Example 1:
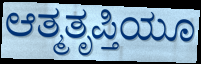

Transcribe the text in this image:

ಆತ್ಮತೃಪ್ತಿಯೂ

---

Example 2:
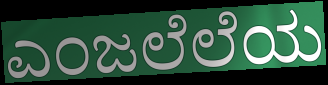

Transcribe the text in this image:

ಎಂಜಲೆಲೆಯ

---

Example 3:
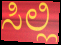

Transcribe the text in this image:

ಸಿಲ್ಲಿ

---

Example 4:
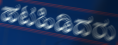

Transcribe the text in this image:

ಹಟಹಿಡಿದರು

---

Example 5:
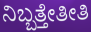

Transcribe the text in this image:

ನಿಬ್ಬತ್ತೇತೀತಿ